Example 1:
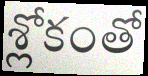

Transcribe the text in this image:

శ్లోకంతో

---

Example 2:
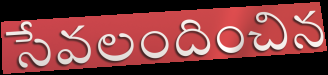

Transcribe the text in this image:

సేవలందించిన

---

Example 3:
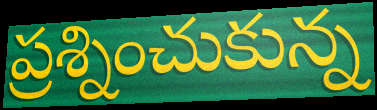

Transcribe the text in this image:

ప్రశ్నించుకున్న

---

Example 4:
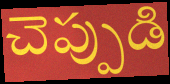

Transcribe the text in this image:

చెప్పుడి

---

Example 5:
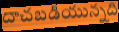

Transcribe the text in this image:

దాచబడియున్నది